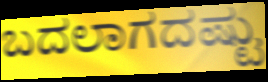
ಬದಲಾಗದಷ್ಟು